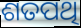
ଶତପଥି